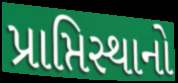
પ્રાપ્તિસ્થાનો